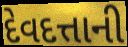
દેવદત્તાની